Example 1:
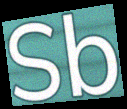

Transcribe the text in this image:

Sb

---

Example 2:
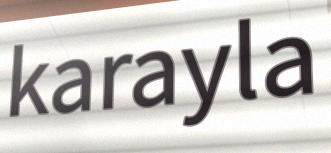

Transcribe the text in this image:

karayla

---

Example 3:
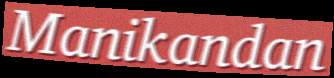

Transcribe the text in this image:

Manikandan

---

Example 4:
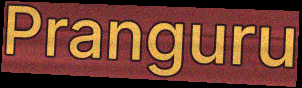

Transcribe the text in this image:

Pranguru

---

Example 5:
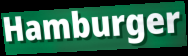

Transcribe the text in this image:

Hamburger